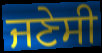
ਜਣੇਸੀ